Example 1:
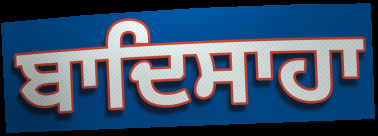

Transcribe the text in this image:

ਬਾਦਿਸਾਹਾ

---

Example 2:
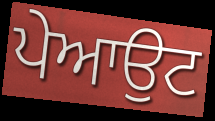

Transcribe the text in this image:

ਪੇਆਉਟ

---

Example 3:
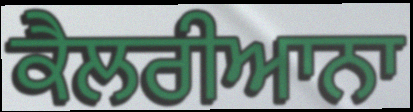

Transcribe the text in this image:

ਕੈਲਰੀਆਨਾ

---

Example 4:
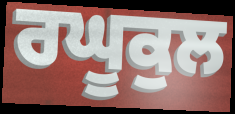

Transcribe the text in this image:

ਰਘੂਕੁਲ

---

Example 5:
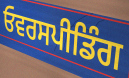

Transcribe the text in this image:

ਓਵਰਸਪੀਡਿੰਗ